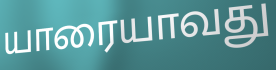
யாரையாவது